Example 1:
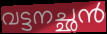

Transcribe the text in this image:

വട്ടനച്ഛൻ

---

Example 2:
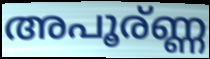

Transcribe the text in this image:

അപൂര്ണ്ണ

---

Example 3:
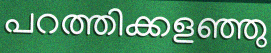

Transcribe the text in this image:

പറത്തിക്കളഞ്ഞു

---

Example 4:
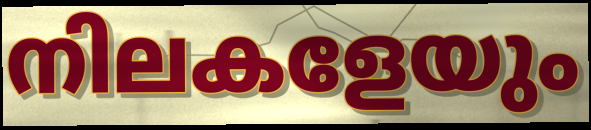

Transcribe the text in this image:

നിലകളേയും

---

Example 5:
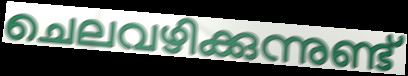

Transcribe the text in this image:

ചെലവഴിക്കുന്നുണ്ട്